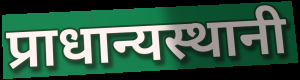
प्राधान्यस्थानी